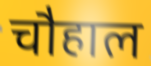
चौहाल